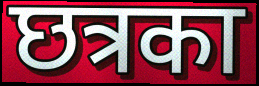
छत्रका